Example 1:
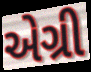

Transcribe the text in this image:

એગ્રી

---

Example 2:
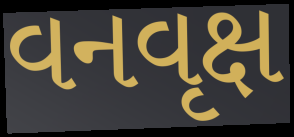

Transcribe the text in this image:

વનવૃક્ષ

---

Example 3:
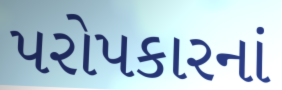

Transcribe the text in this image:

પરોપકારનાં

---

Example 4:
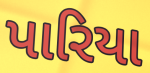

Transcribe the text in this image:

પારિયા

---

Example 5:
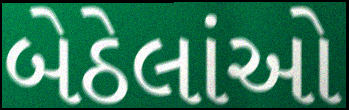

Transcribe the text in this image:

બેઠેલાંઓ